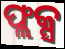
ଫ୍ଲକ୍ସ